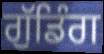
ਗੁੱਡਿੰਗ